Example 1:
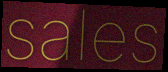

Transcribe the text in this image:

sales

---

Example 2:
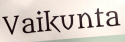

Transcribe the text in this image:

Vaikunta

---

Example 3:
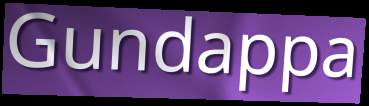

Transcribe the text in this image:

Gundappa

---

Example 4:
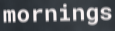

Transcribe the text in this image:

mornings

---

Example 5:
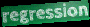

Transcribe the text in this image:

regression